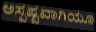
ಅಸ್ಪಷ್ಟವಾಗಿಯೂ